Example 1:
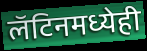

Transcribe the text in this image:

लॅटिनमध्येही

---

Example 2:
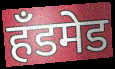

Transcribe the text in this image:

हॅंडमेड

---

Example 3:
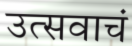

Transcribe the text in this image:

उत्सवाचं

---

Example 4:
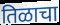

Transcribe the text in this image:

तिळाचा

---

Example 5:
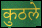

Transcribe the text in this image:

कुठले